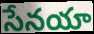
సేనయా